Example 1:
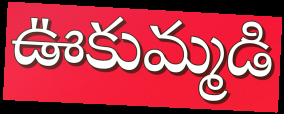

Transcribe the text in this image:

ఊకుమ్మడి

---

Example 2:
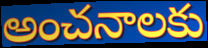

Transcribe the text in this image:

అంచనాలకు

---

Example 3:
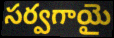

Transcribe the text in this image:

సర్వగాయై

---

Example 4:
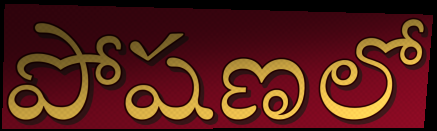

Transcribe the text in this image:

పోషణలో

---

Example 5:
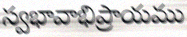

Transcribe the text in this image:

స్వభావాభిప్రాయము